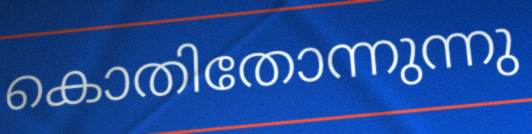
കൊതിതോന്നുന്നു